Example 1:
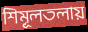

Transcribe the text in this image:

শিমূলতলায়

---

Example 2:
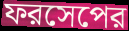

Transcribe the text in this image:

ফরসেপের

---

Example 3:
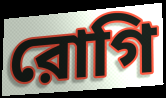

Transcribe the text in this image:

রোগি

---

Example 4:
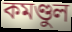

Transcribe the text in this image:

কমণ্ডুল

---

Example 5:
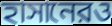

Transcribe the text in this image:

হাসানেরও